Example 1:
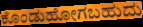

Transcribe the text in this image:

ಕೊಂಡುಹೋಗಬಹುದು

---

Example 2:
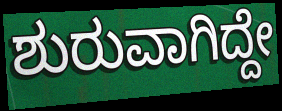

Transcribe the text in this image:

ಶುರುವಾಗಿದ್ದೇ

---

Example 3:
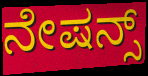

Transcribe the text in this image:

ನೇಷನ್ಸ್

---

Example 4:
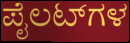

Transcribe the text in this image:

ಪೈಲಟ್‌ಗಳ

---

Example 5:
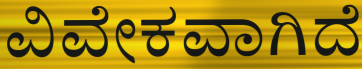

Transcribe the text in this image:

ವಿವೇಕವಾಗಿದೆ